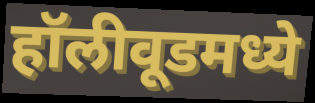
हॉलीवूडमध्ये